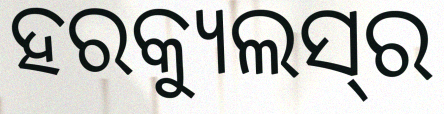
ହରକ୍ୟୁଲସ୍‍ର